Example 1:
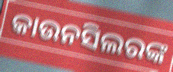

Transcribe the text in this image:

କାଉନସିଲରଙ୍କ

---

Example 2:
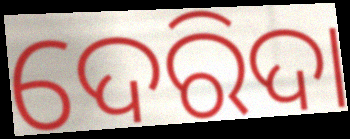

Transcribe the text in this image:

ଦେରିଦା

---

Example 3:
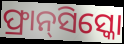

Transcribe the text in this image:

ଫ୍ରାନ୍‌ସିସ୍କୋ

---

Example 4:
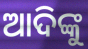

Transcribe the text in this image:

ଆଦିଙ୍କୁ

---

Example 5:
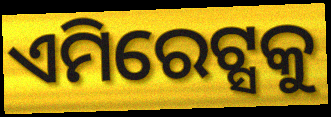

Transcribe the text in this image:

ଏମିରେଟ୍ସକୁ